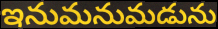
ఇనుమనుమడును